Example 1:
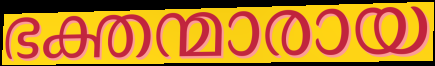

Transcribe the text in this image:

ഭക്തന്മാരായ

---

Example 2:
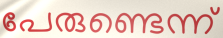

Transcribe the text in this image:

പേരുണ്ടെന്ന്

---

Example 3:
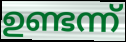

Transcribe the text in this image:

ഉണ്ടന്ന്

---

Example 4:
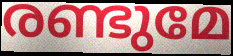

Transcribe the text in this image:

രണ്ടുമേ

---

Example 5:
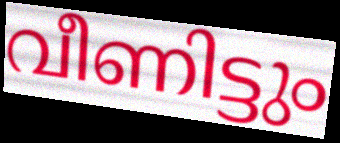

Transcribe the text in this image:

വീണിട്ടും